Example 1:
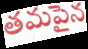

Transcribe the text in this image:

తమపైన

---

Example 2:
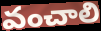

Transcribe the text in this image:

వంచాలి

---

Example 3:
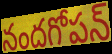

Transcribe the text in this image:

నందగోపన్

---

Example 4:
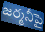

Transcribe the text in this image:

జర్మనీపై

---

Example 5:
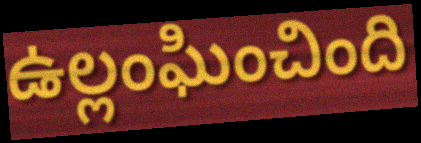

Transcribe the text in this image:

ఉల్లంఘించింది